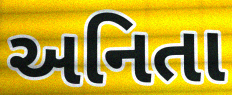
અનિતા